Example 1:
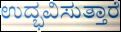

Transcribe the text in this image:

ಉದ್ಭವಿಸುತ್ತಾರೆ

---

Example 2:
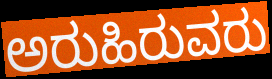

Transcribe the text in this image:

ಅರುಹಿರುವರು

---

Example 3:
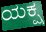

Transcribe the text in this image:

ಯಕ್ಷ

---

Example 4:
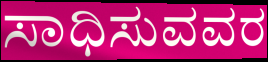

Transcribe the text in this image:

ಸಾಧಿಸುವವರ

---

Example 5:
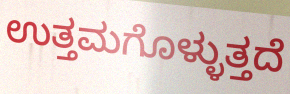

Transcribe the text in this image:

ಉತ್ತಮಗೊಳ್ಳುತ್ತದೆ